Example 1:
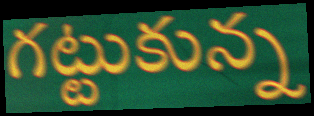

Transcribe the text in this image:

గట్టుకున్న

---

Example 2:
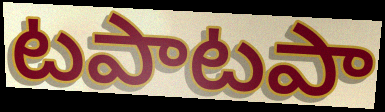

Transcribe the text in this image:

టపాటపా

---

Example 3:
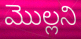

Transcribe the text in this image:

మొల్లని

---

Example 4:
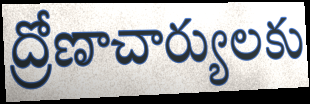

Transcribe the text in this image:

ద్రోణాచార్యులకు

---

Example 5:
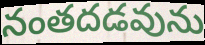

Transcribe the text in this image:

నంతదడవును